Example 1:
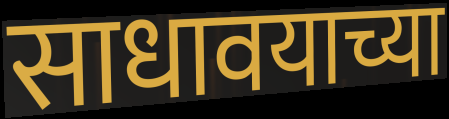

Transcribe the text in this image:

साधावयाच्या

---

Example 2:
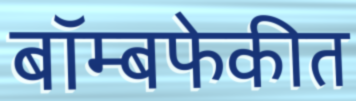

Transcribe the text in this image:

बॉम्बफेकीत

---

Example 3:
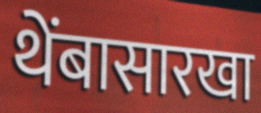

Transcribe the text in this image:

थेंबासारखा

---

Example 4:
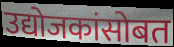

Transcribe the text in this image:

उद्योजकांसोबत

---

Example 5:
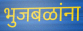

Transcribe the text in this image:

भुजबळांना